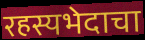
रहस्यभेदाचा